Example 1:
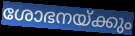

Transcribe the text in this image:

ശോഭനയ്ക്കും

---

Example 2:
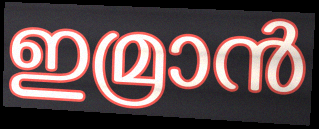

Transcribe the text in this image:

ഇമ്രാൻ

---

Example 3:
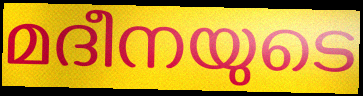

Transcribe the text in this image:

മദീനയുടെ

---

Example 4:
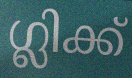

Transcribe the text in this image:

ഗ്ലിക്ക്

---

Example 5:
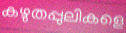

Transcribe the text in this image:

കഴുതപ്പുലികളെ